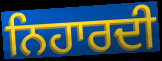
ਨਿਹਾਰਦੀ